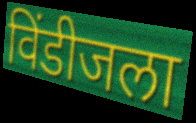
विंडीजला